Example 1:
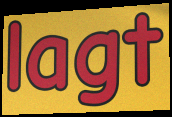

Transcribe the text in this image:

lagt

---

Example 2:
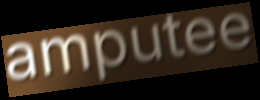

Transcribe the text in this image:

amputee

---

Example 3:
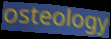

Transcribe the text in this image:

osteology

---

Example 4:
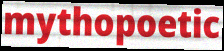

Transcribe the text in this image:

mythopoetic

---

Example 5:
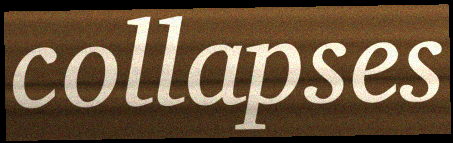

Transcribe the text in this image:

collapses